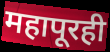
महापूरही